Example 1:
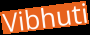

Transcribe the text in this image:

Vibhuti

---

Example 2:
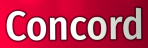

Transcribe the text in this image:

Concord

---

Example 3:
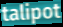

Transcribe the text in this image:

talipot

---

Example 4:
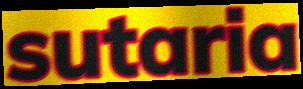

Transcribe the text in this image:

sutaria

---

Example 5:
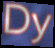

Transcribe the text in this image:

Dy